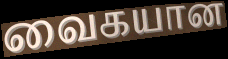
வைகயான